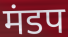
मंडप